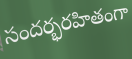
సందర్భరహితంగా